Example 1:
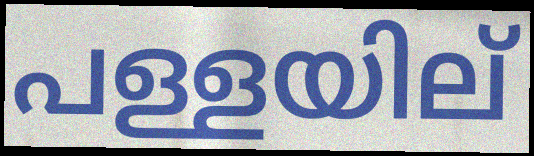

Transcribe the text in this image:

പള്ളയില്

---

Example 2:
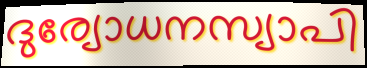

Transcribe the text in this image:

ദുര്യോധനസ്യാപി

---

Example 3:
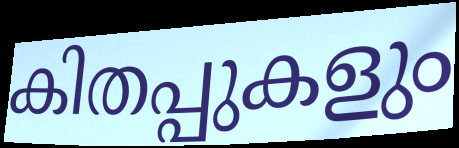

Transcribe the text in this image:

കിതപ്പുകളും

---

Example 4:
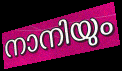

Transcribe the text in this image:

നാനിയും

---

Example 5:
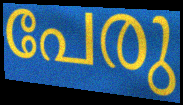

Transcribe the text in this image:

പേരു